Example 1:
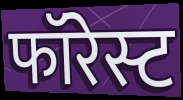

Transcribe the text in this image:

फॉरेस्‍ट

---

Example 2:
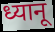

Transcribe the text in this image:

ध्यानू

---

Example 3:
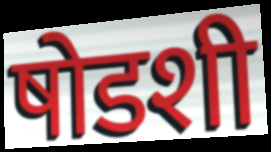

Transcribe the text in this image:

षोडशी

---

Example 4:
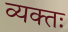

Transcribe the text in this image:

व्यक्तः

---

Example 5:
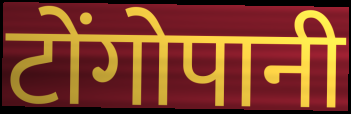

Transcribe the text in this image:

टोंगोपानी